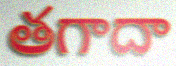
తగాదా